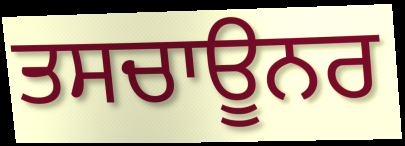
ਤਸਚਾਊਨਰ